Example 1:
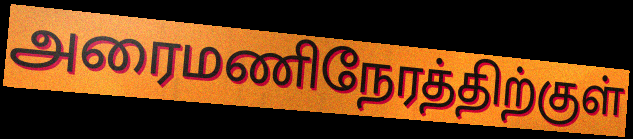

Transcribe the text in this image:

அரைமணிநேரத்திற்குள்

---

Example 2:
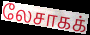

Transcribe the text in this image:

லேசாகக்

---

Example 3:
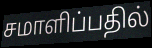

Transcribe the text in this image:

சமாளிப்பதில்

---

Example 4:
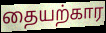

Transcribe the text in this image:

தையற்கார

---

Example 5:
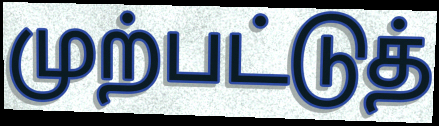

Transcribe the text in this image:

முற்பட்டுத்